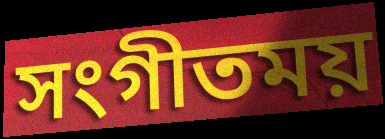
সংগীতময়